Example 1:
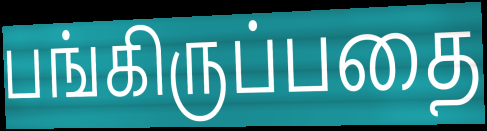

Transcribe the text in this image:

பங்கிருப்பதை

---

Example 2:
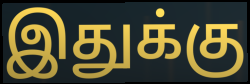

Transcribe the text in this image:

இதுக்கு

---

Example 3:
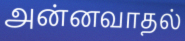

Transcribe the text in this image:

அன்னவாதல்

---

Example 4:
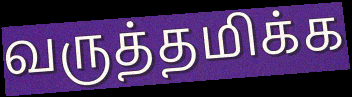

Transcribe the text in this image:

வருத்தமிக்க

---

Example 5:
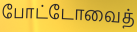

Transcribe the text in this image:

போட்டோவைத்